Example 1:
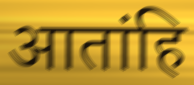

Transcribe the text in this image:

आतांहि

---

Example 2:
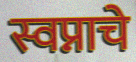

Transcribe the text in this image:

स्वप्नाचे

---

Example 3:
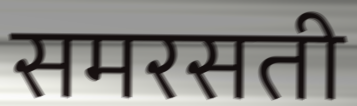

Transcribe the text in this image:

समरसती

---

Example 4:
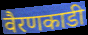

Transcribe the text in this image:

वैरणकाडी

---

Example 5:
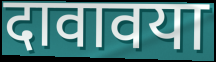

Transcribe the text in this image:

दावावया